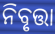
ନିବୃତ୍ତା